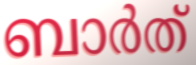
ബാർത്